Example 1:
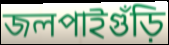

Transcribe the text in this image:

জলপাইগুঁড়ি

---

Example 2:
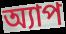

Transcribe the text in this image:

অ্যাপ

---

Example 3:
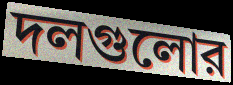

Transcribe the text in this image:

দলগুলোর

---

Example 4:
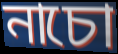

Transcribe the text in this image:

নাচো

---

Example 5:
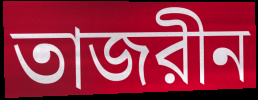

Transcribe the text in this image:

তাজরীন